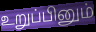
உறுப்பினும்